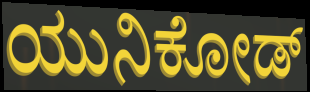
ಯುನಿಕೋಡ್